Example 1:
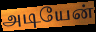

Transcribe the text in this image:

அடியேன்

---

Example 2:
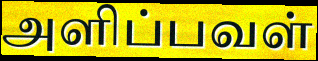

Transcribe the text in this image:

அளிப்பவள்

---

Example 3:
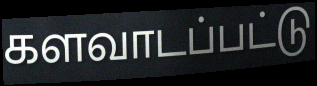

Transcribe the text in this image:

களவாடப்பட்டு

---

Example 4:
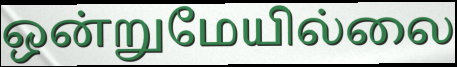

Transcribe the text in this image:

ஒன்றுமேயில்லை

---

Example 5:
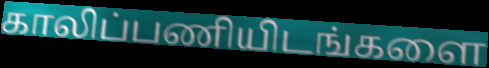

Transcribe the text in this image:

காலிப்பணியிடங்களை